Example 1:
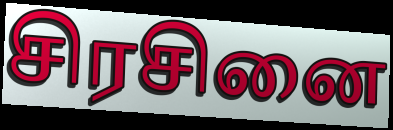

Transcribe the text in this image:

சிரசினை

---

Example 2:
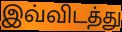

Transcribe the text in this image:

இவ்விடத்து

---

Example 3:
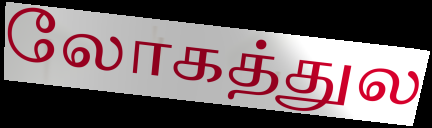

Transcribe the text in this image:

லோகத்துல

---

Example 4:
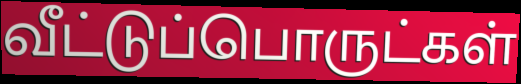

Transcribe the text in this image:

வீட்டுப்பொருட்கள்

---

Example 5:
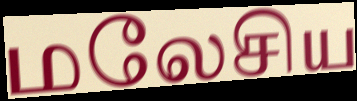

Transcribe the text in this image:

மலேசிய